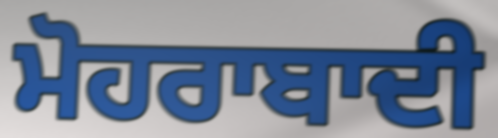
ਮੋਹਰਾਬਾਦੀ